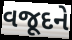
વજૂદને